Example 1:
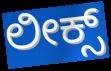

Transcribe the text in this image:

ಲೀಕ್ಸ್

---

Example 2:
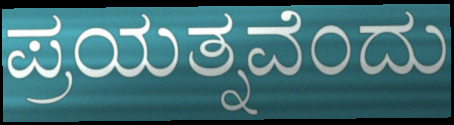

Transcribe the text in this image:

ಪ್ರಯತ್ನವೆಂದು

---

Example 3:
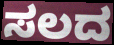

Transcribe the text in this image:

ಸಲದ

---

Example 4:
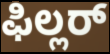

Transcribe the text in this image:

ಫಿಲ್ಲರ್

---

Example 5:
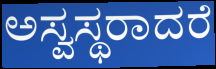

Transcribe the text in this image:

ಅಸ್ವಸ್ಥರಾದರೆ